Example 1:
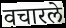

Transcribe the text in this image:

वचारले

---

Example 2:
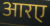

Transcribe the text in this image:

आरए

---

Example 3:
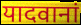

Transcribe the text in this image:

यादवानां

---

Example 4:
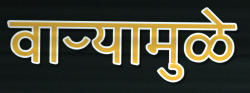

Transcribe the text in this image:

वाऱ्यामुळे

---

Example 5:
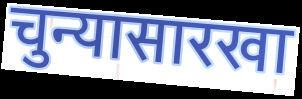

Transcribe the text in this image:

चुन्यासारखा